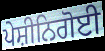
ਪੇਸ਼ੀਨਿਗੋਈ